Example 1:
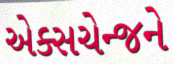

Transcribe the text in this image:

એક્સચેન્જને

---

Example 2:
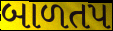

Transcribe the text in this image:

બાળતપ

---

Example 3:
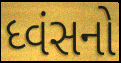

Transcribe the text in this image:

ધ્વંસનો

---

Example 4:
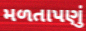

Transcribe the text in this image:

મળતાપણું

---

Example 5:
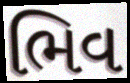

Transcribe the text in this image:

ભિવ